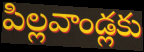
పిల్లవాండ్లకు